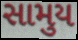
સામુય